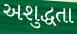
અશુદ્ધતા